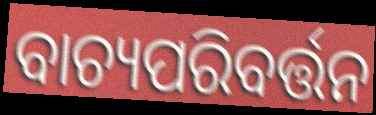
ବାଚ୍ୟପରିବର୍ତ୍ତନ